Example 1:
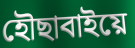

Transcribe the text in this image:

হৌছাবাইয়ে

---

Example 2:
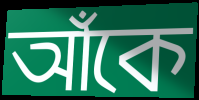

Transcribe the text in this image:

আঁকে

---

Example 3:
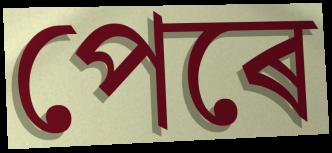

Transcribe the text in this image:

পেৰে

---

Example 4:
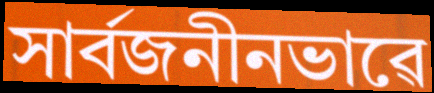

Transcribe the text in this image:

সাৰ্বজনীনভাৱে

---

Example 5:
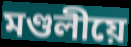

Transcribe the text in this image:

মণ্ডলীয়ে